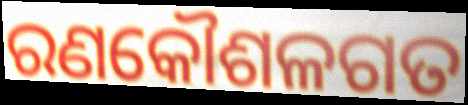
ରଣକୌଶଳଗତ